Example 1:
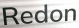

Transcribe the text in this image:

Redon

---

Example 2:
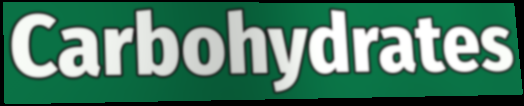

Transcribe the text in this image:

Carbohydrates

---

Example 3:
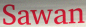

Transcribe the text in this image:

Sawan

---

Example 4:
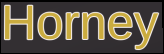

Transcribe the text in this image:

Horney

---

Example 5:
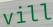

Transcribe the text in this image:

vill